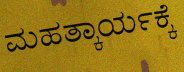
ಮಹತ್ಕಾರ್ಯಕ್ಕೆ